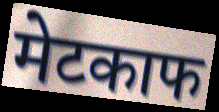
मेटकाफ